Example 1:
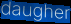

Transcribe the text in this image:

daugher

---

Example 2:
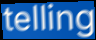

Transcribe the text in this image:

telling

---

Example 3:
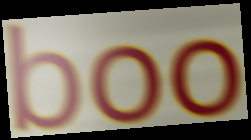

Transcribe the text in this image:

boo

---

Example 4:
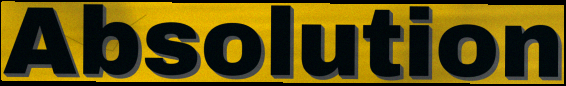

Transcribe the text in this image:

Absolution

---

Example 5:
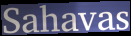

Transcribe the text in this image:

Sahavas